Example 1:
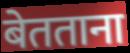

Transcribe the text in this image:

बेतताना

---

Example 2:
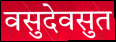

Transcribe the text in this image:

वसुदेवसुत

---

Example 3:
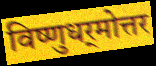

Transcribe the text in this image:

विष्णुधर्मोत्तर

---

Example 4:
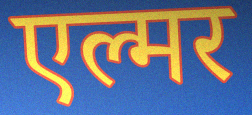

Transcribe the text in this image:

एल्मर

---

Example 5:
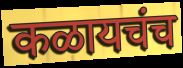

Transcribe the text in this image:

कळायचंच